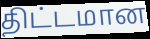
திட்டமான